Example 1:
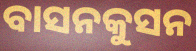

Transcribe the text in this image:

ବାସନକୁସନ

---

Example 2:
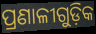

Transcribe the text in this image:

ପ୍ରଣାଳୀଗୁଡ଼ିକ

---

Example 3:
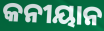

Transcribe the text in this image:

କନୀୟାନ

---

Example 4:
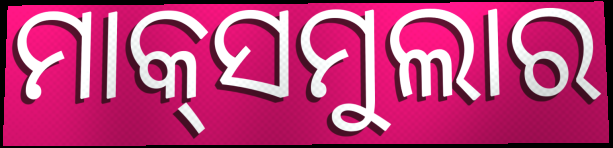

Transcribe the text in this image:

ମାକ୍‌ସମୁଲାର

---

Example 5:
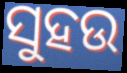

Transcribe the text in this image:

ସୁହଉ